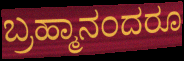
ಬ್ರಹ್ಮಾನಂದರೂ